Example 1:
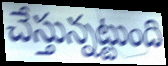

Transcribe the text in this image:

చేస్తున్నట్టుంది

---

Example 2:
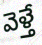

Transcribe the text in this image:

వెళ్తే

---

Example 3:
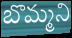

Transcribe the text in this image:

బొమ్మని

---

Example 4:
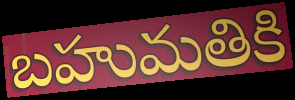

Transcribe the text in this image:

బహుమతికి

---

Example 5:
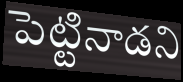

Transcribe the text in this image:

పెట్టినాడని